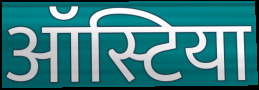
ऑस्टिया